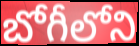
బోగీలోని